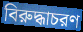
বিরুদ্ধাচরণ